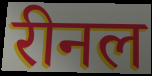
रीनल